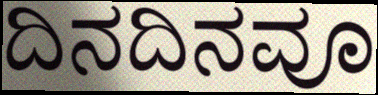
ದಿನದಿನವೂ